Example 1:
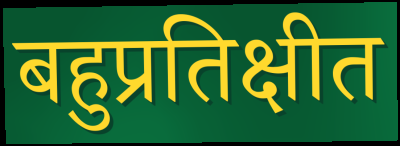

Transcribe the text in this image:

बहुप्रतिक्षीत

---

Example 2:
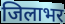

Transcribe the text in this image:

जिलाभर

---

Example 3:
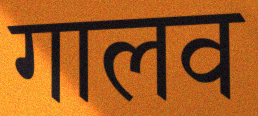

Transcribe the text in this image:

गालव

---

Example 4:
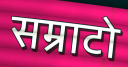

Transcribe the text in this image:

सम्राटो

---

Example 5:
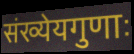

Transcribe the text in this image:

संख्येयगुणाः